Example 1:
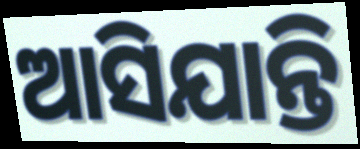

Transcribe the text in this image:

ଆସିଯାନ୍ତି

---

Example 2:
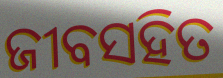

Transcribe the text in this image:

ଜୀବସହିତ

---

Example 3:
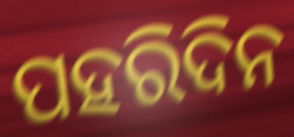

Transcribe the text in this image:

ପହରିଦିନ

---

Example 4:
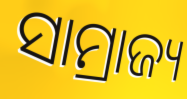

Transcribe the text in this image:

ସାମ୍ରାଜ୍ୟ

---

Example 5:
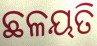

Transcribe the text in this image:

ଛଳୟତି